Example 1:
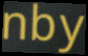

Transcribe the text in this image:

nby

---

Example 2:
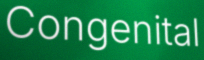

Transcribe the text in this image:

Congenital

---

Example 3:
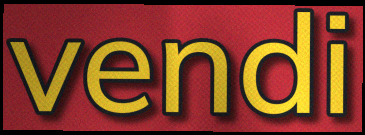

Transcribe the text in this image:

vendi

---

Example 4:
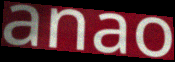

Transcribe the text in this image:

anao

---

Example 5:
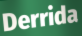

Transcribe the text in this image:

Derrida